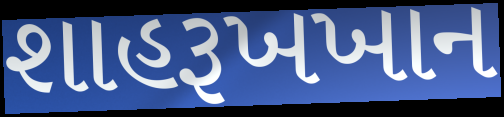
શાહરૂખખાન